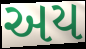
અય